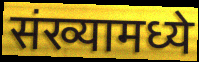
संख्यामध्ये